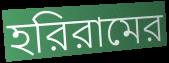
হরিরামের